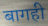
बागही